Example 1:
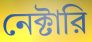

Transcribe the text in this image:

নেক্টারি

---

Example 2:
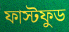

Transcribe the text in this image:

ফাস্টফুড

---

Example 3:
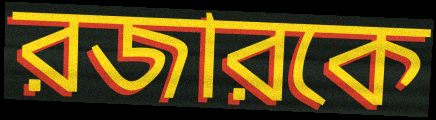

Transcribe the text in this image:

রজারকে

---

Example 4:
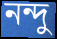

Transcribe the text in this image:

নন্দু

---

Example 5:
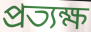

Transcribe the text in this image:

প্রত্যক্ষ